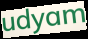
udyam